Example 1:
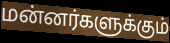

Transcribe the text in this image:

மன்னர்களுக்கும்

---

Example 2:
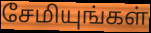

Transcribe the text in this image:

சேமியுங்கள்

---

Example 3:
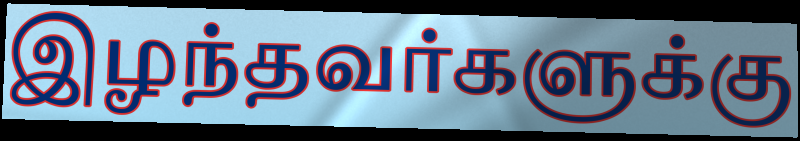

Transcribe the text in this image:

இழந்தவர்களுக்கு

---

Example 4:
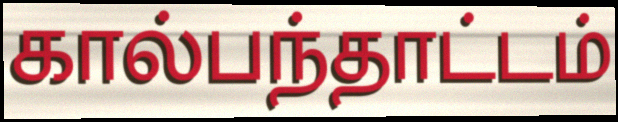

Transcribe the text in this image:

கால்பந்தாட்டம்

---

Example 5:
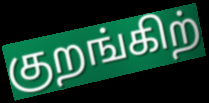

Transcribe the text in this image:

குறங்கிற்